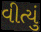
વીત્યું